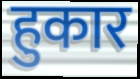
हुकार